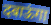
दबाऊंगा